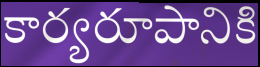
కార్యరూపానికి